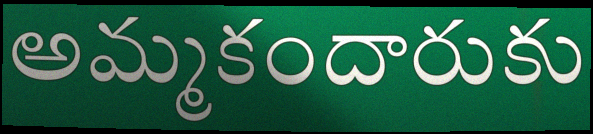
అమ్మకందారుకు